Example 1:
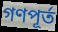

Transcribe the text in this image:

গণপূর্ত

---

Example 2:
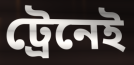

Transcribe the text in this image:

ট্রেনেই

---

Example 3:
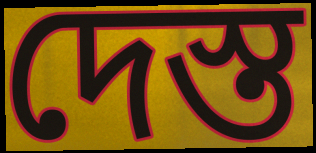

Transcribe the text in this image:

দেস্ত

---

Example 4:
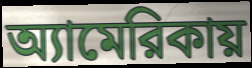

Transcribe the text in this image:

অ্যামেরিকায়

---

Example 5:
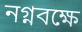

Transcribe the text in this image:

নগ্নবক্ষে